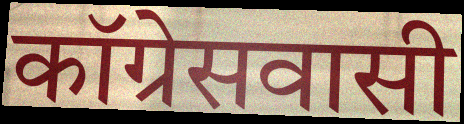
कॉग्रेसवासी